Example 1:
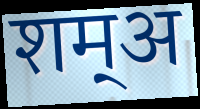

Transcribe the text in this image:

शम्अ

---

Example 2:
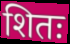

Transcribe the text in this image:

शितः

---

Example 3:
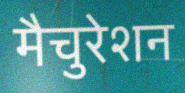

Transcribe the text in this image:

मैचुरेशन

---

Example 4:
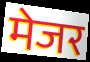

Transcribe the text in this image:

मेजर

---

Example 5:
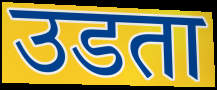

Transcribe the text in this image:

उडता